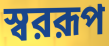
স্বররূপ